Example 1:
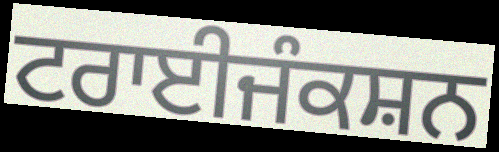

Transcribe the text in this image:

ਟਰਾਈਜੰਕਸ਼ਨ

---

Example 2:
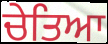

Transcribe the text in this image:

ਚੇਤਿਆ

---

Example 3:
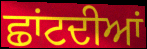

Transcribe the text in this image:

ਛਾਂਟਦੀਆਂ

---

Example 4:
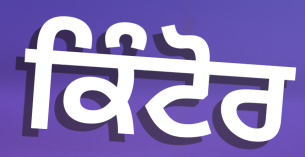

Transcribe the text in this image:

ਕਿੰਟੋਰ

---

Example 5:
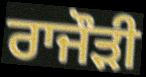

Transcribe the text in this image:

ਰਾਜੌੜੀ